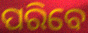
ପରିବେ